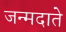
जन्मदाते